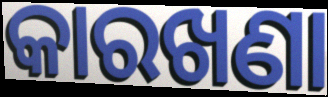
କାରଖଣା